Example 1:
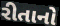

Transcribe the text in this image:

રીતાનો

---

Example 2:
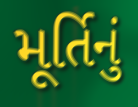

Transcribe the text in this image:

મૂર્તિનું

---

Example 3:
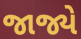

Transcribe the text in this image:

જાજ્યે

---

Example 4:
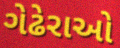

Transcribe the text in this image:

ગેઢેરાઓ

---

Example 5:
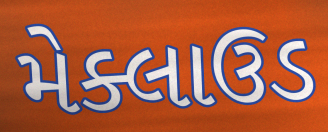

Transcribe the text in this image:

મેક્લાઉડ